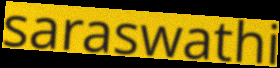
saraswathi